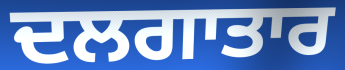
ਦਲਗਾਤਾਰ